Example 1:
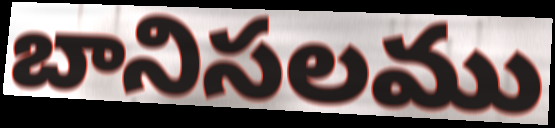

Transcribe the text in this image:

బానిసలము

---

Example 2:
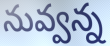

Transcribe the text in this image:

నువ్వన్న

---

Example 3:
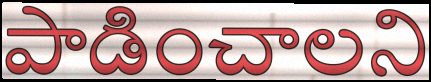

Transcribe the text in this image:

పాడించాలని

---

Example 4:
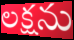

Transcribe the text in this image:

లక్షను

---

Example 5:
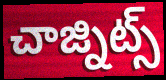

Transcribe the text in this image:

చాజ్నిట్స్